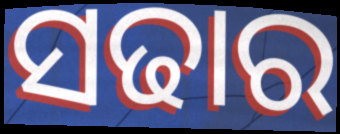
ସଢାର